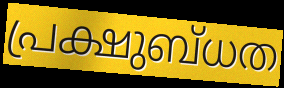
പ്രക്ഷുബ്ധത